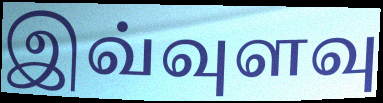
இவ்வுளவு